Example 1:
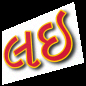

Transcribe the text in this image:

લઇ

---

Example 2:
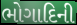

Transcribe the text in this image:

ભોગાદિની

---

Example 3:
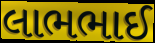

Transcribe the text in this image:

લાભભાઈ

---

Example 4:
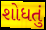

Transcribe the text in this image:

શોધતું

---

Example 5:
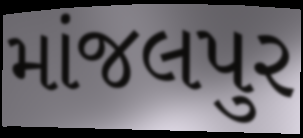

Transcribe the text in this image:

માંજલપુર